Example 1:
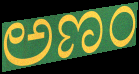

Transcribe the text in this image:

ಅಣಂ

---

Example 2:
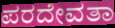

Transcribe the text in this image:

ಪರದೇವತಾ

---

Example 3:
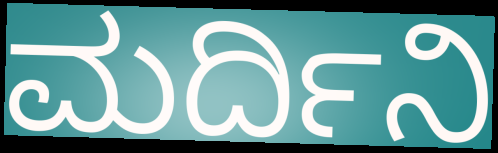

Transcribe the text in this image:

ಮರ್ದಿನಿ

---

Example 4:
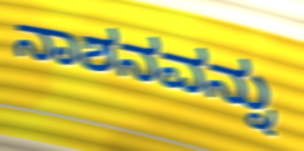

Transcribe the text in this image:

ನಾಶನವನ್ನು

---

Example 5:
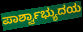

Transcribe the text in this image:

ಪಾರ್ಶ್ವಾಭ್ಯುದಯ